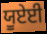
ਯੂਏਈ